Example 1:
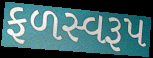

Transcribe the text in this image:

ફળસ્વરૂપ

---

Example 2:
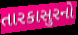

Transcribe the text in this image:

તારકાસુરનો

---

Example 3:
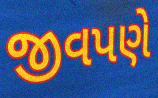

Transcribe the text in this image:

જીવપણે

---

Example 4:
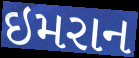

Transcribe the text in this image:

ઇમરાન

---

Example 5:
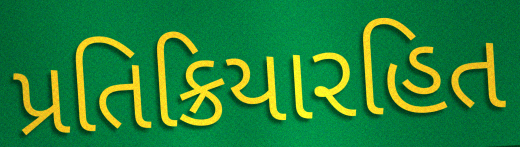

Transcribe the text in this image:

પ્રતિક્રિયારહિત